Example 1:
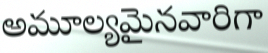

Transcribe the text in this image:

అమూల్యమైనవారిగా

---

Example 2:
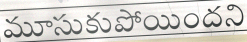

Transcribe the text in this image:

మూసుకుపోయిందని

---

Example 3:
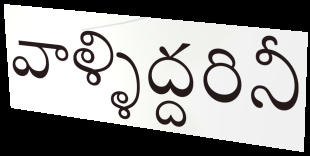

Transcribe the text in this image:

వాళ్ళిద్దరినీ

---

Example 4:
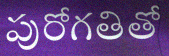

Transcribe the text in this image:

పురోగతితో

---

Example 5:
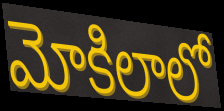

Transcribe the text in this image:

మోకిలాలో